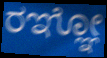
ರಞ್ಞೋ